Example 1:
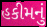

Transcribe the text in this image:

હકીમનું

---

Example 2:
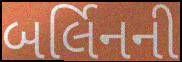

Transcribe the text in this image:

બર્લિનની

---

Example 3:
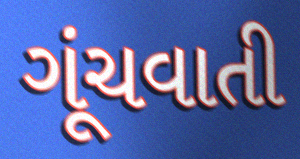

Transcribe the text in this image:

ગૂંચવાતી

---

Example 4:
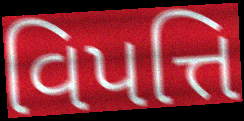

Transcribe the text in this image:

વિપત્તિ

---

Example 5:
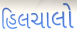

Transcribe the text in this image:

હિલચાલો